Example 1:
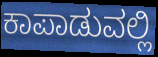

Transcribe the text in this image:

ಕಾಪಾಡುವಲ್ಲಿ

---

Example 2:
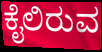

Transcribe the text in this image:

ಕೈಲಿರುವ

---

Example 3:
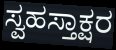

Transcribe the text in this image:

ಸ್ವಹಸ್ತಾಕ್ಷರ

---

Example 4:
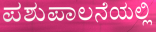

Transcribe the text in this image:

ಪಶುಪಾಲನೆಯಲ್ಲಿ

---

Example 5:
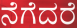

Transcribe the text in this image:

ನೆಗೆದರೆ